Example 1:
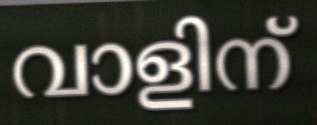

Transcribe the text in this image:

വാളിന്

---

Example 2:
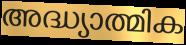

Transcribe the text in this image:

അദ്ധ്യാത്മിക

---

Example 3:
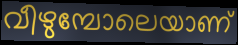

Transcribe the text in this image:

വീഴുമ്പോലെയാണ്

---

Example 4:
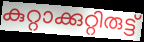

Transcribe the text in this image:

കുറ്റാക്കുറ്റിരുട്ട്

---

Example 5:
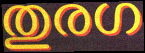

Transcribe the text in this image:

തുരഗ